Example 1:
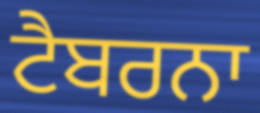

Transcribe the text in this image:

ਟੈਬਰਨਾ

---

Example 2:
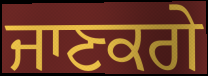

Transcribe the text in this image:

ਜਾਣਕਗੇ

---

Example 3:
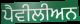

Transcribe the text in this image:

ਪੈਵੀਲੀਅਨ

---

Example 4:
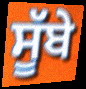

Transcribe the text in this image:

ਸੂੱਬੇ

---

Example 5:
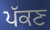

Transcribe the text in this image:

ਪੱਕਣ